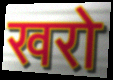
खरो